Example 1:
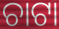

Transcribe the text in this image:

ଚାଟା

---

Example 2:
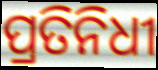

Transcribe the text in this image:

ପ୍ରତିନିଧୀ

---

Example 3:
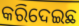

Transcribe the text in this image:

କରିଦେଇଛ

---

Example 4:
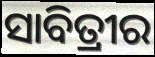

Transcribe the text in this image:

ସାବିତ୍ରୀର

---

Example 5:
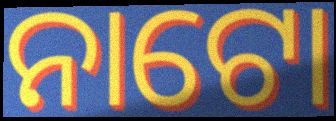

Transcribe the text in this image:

ନାଟୋ